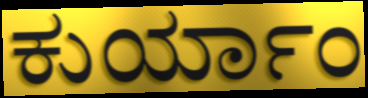
ಕುರ್ಯಾಂ